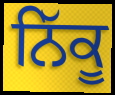
ਨਿੱਕੂ